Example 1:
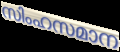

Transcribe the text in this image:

സിംഹസമാന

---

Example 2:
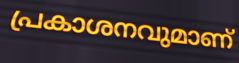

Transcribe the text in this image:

പ്രകാശനവുമാണ്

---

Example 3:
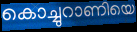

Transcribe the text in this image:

കൊച്ചുറാണിയെ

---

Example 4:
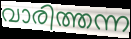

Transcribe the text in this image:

വാരിത്തന്ന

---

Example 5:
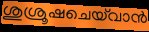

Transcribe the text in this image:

ശുശ്രൂഷചെയ്‌വാൻ